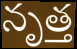
నృత్త